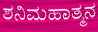
ಶನಿಮಹಾತ್ಮನ